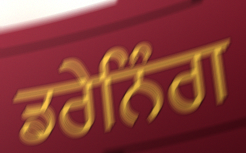
ਡਰੇਨਿੰਗ